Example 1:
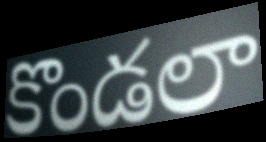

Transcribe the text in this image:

కొండలా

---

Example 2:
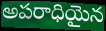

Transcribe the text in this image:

అపరాధియైన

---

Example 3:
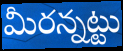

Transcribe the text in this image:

మీరన్నట్టు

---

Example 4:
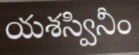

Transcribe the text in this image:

యశస్వినీం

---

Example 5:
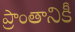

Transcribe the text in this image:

ప్రాంతానికీ